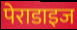
पेराडाइज